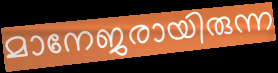
മാനേജരായിരുന്ന